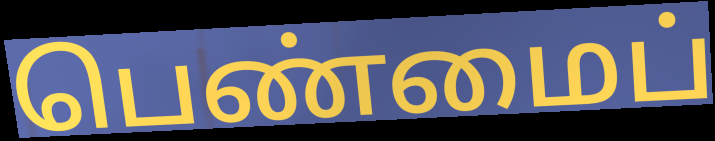
பெண்மைப்